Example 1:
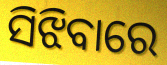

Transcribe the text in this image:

ସିଝିବାରେ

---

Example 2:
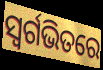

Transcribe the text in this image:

ସ୍ଵର୍ଗଭିତରେ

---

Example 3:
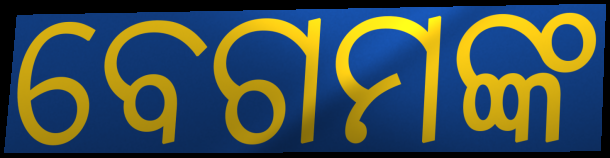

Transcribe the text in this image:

ବେଗମଙ୍କ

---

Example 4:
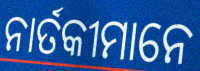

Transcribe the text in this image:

ନାର୍ତକୀମାନେ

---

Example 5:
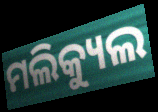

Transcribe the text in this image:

ମଲିକ୍ୟୁଲ